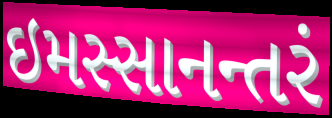
ઇમસ્સાનન્તરં